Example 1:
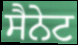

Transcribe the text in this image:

ਸੈਨੇਟ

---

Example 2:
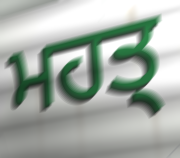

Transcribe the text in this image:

ਮਹਤ੍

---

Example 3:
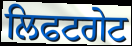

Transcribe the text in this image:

ਲਿਫਟਗੇਟ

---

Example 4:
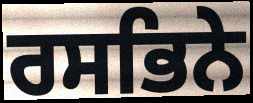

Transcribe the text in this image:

ਰਸਭਿਨੇ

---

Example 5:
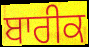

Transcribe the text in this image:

ਬਾਰੀਕ